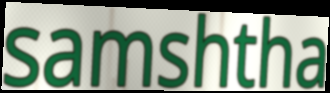
samshtha